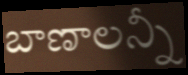
బాణాలన్నీ